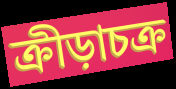
ক্রীড়াচক্র